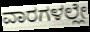
ವಾರಗಳಲ್ಲೇ